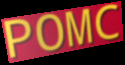
POMC